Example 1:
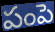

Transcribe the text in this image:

పంపె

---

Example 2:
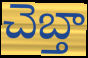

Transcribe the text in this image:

చెబ్తా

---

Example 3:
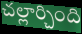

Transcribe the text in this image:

చల్లార్చింది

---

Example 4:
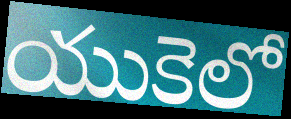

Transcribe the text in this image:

యుకెలో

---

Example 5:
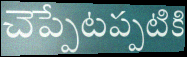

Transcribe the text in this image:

చెప్పేటప్పటికి